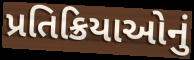
પ્રતિક્રિયાઓનું